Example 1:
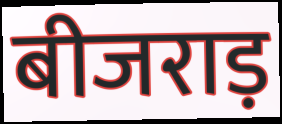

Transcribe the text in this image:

बीजराड़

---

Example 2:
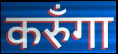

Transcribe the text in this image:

करुँगा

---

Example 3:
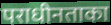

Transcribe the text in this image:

पराधीनताका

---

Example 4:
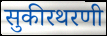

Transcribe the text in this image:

सुकीरथरणी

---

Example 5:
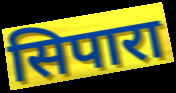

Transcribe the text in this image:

सिपारा